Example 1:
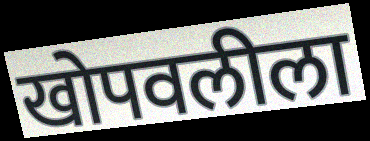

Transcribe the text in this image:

खोपवलीला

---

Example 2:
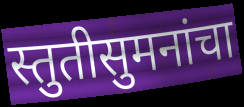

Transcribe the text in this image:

स्तुतीसुमनांचा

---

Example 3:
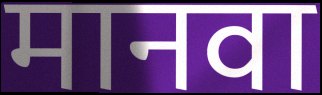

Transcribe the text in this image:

मानवा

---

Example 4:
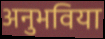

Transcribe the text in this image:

अनुभविया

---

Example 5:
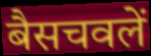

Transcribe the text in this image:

बैसचवलें